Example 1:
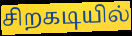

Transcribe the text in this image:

சிறகடியில்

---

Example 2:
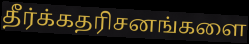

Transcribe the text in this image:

தீர்க்கதரிசனங்களை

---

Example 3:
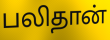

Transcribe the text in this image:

பலிதான்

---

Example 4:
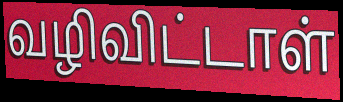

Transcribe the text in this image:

வழிவிட்டாள்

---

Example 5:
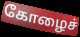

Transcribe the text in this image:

கோழைச்